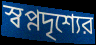
স্বপ্নদৃশ্যের